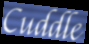
Cuddle